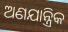
ଅଣଯାନ୍ତ୍ରିକ